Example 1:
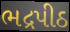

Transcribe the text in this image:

ભદ્રપીઠ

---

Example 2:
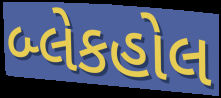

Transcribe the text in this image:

બ્લેકહોલ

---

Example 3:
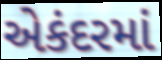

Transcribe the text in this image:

એકંદરમાં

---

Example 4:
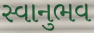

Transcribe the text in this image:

સ્વાનુભવ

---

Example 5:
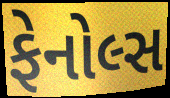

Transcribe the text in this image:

ફેનોલ્સ